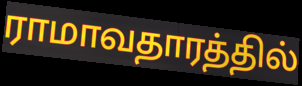
ராமாவதாரத்தில்